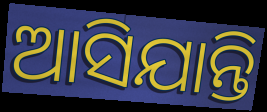
ଆସିଯାନ୍ତି